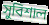
সুবিশাল